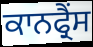
ਕਾਨਫ੍ਰੈਂਸ